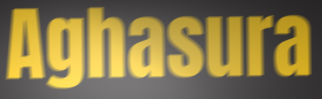
Aghasura